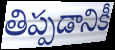
తిప్పడానికీ